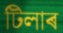
টিলাৰ